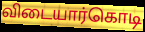
விடையார்கொடி